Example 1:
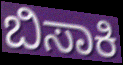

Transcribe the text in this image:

ಬಿಸಾಕಿ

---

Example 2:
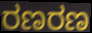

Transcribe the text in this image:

ರಣರಣ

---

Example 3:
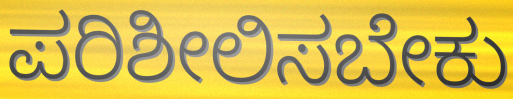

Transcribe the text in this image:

ಪರಿಶೀಲಿಸಬೇಕು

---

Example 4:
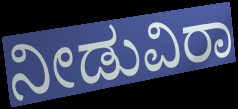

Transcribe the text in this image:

ನೀಡುವಿರಾ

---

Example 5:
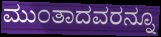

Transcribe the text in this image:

ಮುಂತಾದವರನ್ನೂ